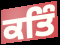
ਕਤਿੰ